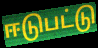
ஈடுபட்டு